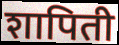
शापिती